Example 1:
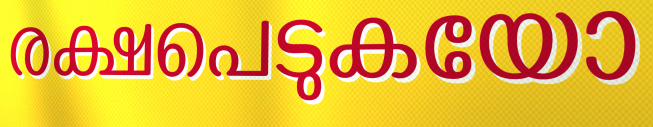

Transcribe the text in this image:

രക്ഷപെടുകയോ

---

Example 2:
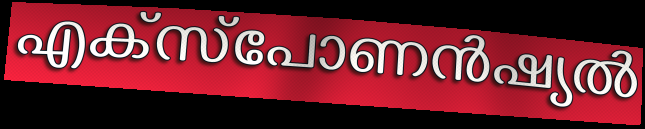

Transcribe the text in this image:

എക്‌സ്‌പോണൻഷ്യൽ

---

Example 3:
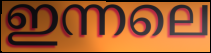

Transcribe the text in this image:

ഇന്നലെ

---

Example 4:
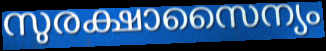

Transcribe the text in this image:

സുരക്ഷാസൈന്യം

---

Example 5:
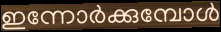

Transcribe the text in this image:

ഇന്നോർക്കുമ്പോൾ